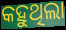
କହୁଥିଲା